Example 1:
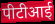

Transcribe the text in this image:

पीटीआई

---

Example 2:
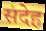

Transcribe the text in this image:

संदेह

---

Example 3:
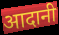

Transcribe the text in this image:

आदानी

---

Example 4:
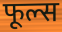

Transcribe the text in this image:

फूल्स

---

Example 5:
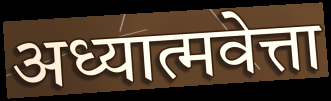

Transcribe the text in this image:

अध्यात्मवेत्ता